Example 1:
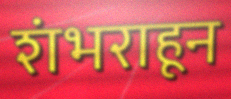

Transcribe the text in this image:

शंभराहून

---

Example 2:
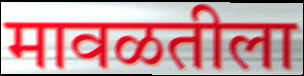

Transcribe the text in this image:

मावळतीला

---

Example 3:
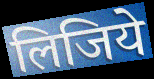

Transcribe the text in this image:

लिजिये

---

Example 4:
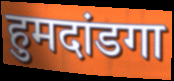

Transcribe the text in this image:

हुमदांडगा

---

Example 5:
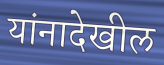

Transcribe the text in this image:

यांनादेखील